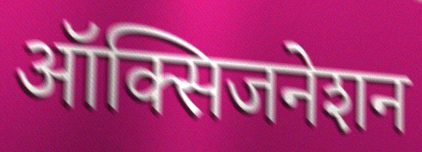
ऑक्सिजनेशन